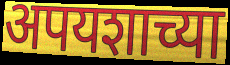
अपयशाच्या